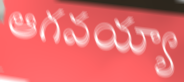
ఆగవయ్యా